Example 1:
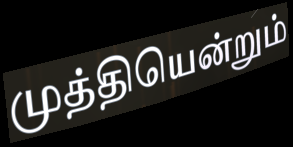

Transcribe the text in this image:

முத்தியென்றும்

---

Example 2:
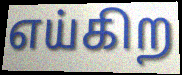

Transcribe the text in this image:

எய்கிற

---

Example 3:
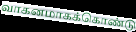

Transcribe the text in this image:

வாகனமாகக்கொண்டு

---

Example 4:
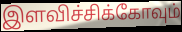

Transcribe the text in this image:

இளவிச்சிக்கோவும்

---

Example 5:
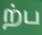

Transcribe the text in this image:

ற்ப